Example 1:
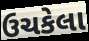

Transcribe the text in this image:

ઉચકેલા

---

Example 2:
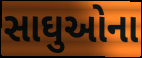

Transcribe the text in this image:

સાઘુઓના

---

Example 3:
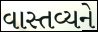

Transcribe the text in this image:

વાસ્તવ્યને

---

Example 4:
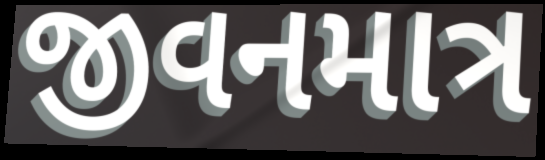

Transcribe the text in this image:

જીવનમાત્ર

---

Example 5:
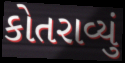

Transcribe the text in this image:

કોતરાવ્યું